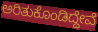
ಅರಿತುಕೊಂಡಿದ್ದೇವೆ